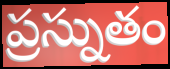
ప్రస్నుతం